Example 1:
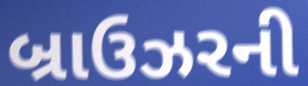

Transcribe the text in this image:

બ્રાઉઝરની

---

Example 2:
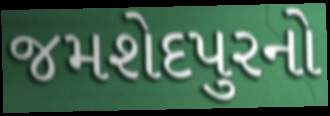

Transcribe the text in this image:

જમશેદપુરનો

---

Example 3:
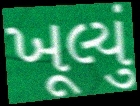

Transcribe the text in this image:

ખૂલ્યું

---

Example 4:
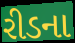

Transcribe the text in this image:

રીડના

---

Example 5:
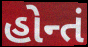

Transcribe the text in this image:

હોન્તં